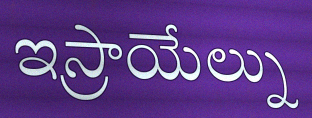
ఇస్రాయేల్ను